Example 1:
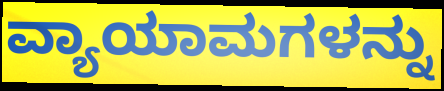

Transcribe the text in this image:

ವ್ಯಾಯಾಮಗಳನ್ನು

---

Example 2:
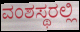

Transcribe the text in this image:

ವಂಶಸ್ಥರಲ್ಲಿ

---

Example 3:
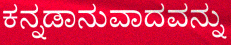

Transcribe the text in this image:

ಕನ್ನಡಾನುವಾದವನ್ನು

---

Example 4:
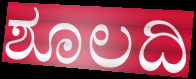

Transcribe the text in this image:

ಶೂಲದಿ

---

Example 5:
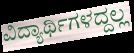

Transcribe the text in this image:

ವಿದ್ಯಾರ್ಥಿಗಳದ್ದಲ್ಲ